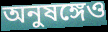
অনুষঙ্গেও